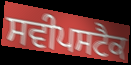
ਸਵੀਪਸਟੈਕ